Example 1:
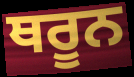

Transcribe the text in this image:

ਥਰੂਨ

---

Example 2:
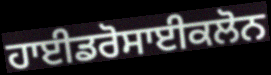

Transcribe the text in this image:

ਹਾਈਡਰੋਸਾਈਕਲੋਨ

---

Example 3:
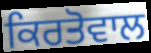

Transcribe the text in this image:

ਕਿਰਤੋਵਾਲ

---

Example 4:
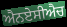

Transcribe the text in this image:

ਐਨਏਸੀਐਚ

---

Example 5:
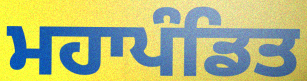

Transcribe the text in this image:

ਮਹਾਪੰਡਿਤ